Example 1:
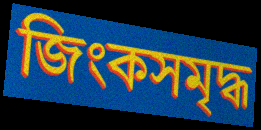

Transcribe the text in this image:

জিংকসমৃদ্ধ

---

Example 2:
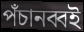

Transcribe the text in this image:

পঁচানব্বই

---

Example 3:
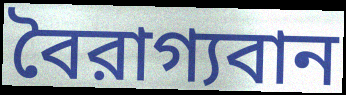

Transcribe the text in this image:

বৈরাগ্যবান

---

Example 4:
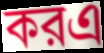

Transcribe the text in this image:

করএ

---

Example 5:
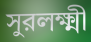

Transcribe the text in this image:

সুরলক্ষ্মী